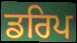
ਡਰਿਪ